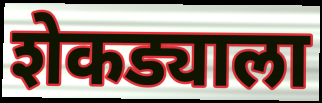
शेकड्याला